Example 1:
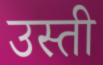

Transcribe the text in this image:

उस्ती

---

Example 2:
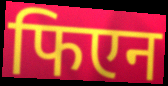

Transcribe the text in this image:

फिएन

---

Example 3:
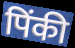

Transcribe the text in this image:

पिंकी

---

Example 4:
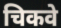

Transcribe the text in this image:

चिकवे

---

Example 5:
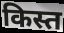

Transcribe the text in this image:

किस्त